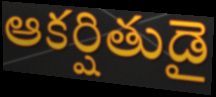
ఆకర్షితుడై